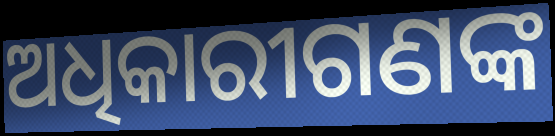
ଅଧିକାରୀଗଣଙ୍କ